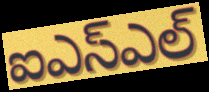
ఐఎస్ఎల్